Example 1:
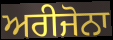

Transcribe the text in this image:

ਅਰੀਜੋਨਾ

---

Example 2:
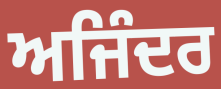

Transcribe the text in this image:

ਅਜਿੰਦਰ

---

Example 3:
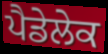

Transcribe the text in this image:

ਪੈਡੇਲੇਕ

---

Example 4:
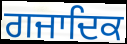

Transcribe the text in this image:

ਗਜਾਦਿਕ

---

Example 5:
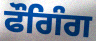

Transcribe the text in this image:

ਫੌਗਿੰਗ